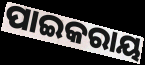
ପାଇକରାୟ